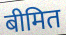
बीमित